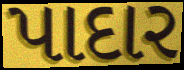
પાદાર